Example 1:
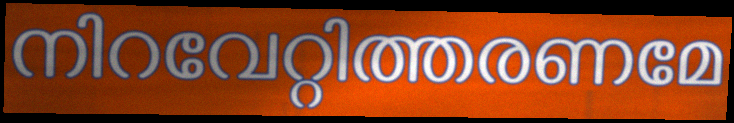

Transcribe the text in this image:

നിറവേറ്റിത്തരണമേ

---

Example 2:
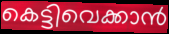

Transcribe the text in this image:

കെട്ടിവെക്കാൻ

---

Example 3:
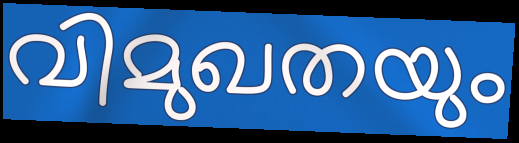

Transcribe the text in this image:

വിമുഖതയും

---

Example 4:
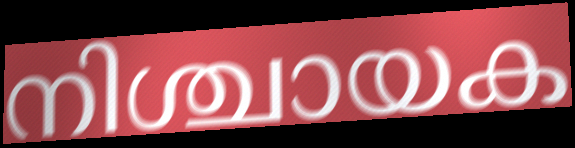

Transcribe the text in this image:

നിശ്ചായക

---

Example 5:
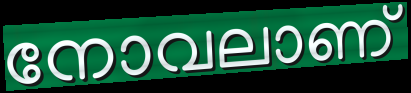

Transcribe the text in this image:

നോവലാണ്